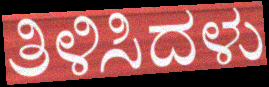
ತಿಳಿಸಿದಳು